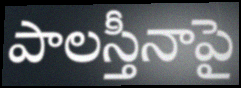
పాలస్తీనాపై